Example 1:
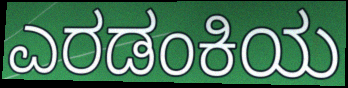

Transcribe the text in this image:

ಎರಡಂಕಿಯ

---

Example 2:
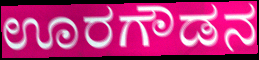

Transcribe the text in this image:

ಊರಗೌಡನ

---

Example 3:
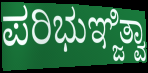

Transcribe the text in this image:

ಪರಿಭುಞ್ಜಿತ್ವಾ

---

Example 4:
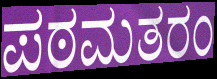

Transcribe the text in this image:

ಪಠಮತರಂ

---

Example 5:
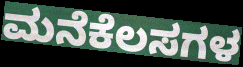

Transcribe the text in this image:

ಮನೆಕೆಲಸಗಳ